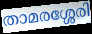
താമരശ്ശേരി